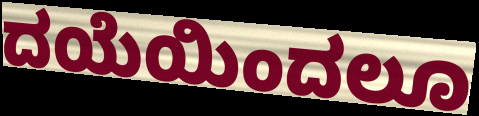
ದಯೆಯಿಂದಲೂ